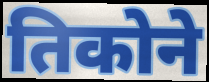
तिकोने